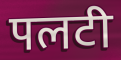
पलटी